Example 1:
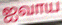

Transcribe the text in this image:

ஐவாய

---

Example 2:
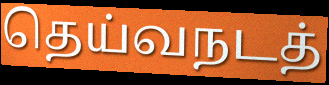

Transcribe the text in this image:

தெய்வநடத்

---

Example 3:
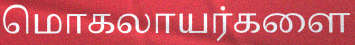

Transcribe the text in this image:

மொகலாயர்களை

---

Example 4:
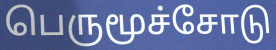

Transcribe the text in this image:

பெருமூச்சோடு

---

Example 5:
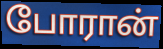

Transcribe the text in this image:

போரான்